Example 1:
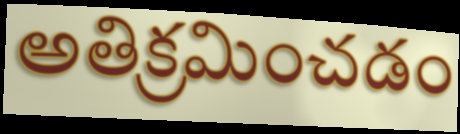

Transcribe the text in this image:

అతిక్రమించడం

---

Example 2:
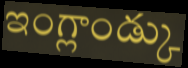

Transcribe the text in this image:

ఇంగ్లాండ్కు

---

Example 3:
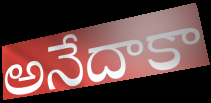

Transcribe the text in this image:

అనేదాకా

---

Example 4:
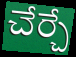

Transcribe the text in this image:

చేర్చే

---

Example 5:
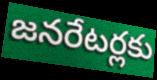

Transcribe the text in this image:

జనరేటర్లకు